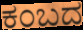
ಕಂಬದ